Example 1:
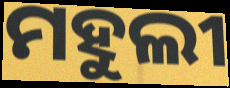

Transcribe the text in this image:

ମହୁଲୀ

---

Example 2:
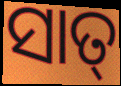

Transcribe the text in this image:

ସାତ୍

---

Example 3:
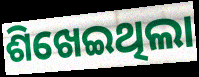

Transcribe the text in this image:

ଶିଖେଇଥିଲା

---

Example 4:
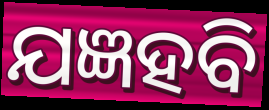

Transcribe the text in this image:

ଯଜ୍ଞହବି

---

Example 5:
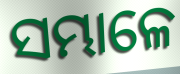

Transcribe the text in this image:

ସମ୍ଭାଳେ